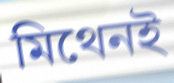
মিথেনই